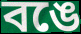
বঙে